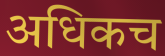
अधिकच